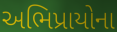
અભિપ્રાયોના